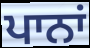
ਪਾਨਾਂ